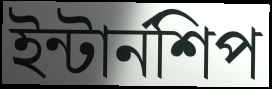
ইন্টার্নশিপ